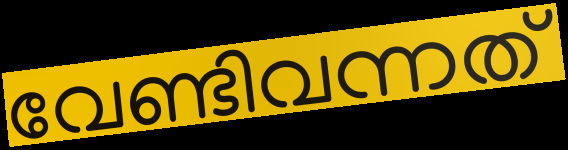
വേണ്ടിവന്നത്